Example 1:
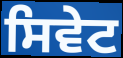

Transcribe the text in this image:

ਸਿਵੇਟ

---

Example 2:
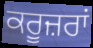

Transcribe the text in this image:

ਕਰੂਜ਼ਰਾਂ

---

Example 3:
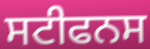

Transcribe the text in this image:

ਸਟੀਫਨਸ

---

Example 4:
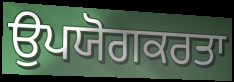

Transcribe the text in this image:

ਉਪਯੋਗਕਰਤਾ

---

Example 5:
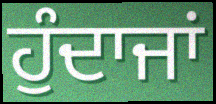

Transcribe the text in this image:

ਹੁੰਦਾਜਾਂ